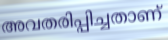
അവതരിപ്പിച്ചതാണ്